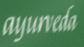
ayurveda